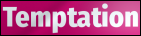
Temptation